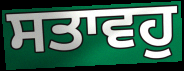
ਸਤਾਵਹੁ